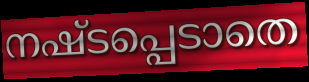
നഷ്ടപ്പെടാതെ